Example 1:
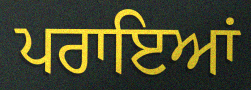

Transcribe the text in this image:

ਪਰਾਇਆਂ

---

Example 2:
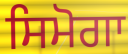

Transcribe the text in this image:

ਸਿਮੋਗਾ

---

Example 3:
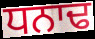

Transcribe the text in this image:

ਧਨਾਢ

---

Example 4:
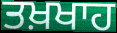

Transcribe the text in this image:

ਤਖ਼ਖਾਹ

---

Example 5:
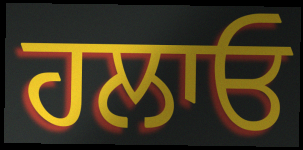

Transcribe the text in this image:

ਹਲਾਓ